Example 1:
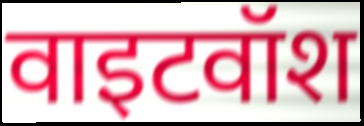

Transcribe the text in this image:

वाइटवॉश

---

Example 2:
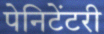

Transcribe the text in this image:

पेनिटेंटरी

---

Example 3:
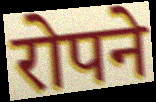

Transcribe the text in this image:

रोपने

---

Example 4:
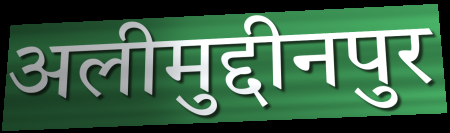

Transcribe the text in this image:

अलीमुद्दीनपुर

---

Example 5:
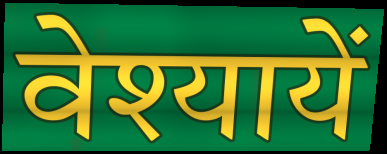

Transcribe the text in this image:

वेश्यायें